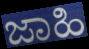
ಜಾಹಿ